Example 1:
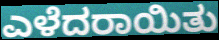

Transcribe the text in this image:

ಎಳೆದರಾಯಿತು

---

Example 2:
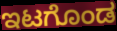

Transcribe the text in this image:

ಇಟಗೊಂಡ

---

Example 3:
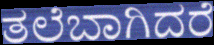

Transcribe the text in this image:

ತಲೆಬಾಗಿದರೆ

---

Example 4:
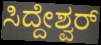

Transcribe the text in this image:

ಸಿದ್ದೇಶ್ವರ್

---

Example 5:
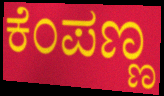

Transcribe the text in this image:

ಕೆಂಪಣ್ಣ